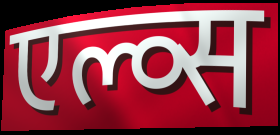
एल्व्स